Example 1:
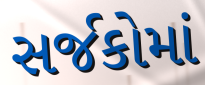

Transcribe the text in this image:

સર્જકોમાં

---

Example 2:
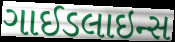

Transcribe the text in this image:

ગાઈડલાઇન્સ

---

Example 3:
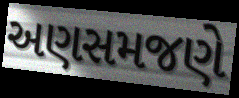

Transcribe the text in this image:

અણસમજણે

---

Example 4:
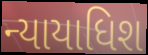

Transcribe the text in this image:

ન્યાયાધિશ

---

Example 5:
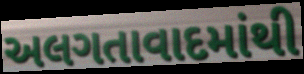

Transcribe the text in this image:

અલગતાવાદમાંથી